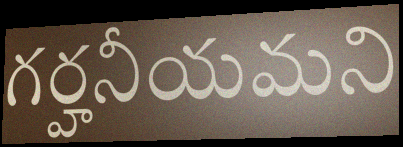
గర్హనీయమని